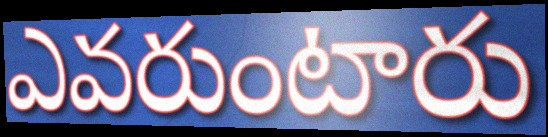
ఎవరుంటారు